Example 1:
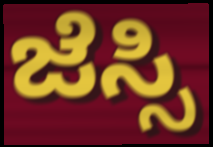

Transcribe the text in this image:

ಜೆಸ್ಸಿ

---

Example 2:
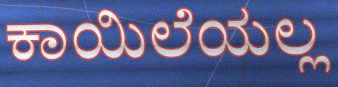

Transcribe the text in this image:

ಕಾಯಿಲೆಯಲ್ಲ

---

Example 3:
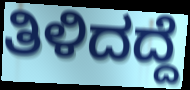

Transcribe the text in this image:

ತಿಳಿದದ್ದೆ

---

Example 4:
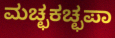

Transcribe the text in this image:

ಮಚ್ಛಕಚ್ಛಪಾ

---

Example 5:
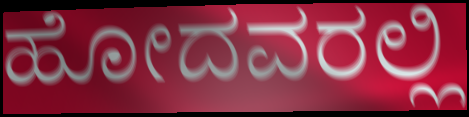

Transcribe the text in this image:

ಹೋದವರಲ್ಲಿ